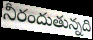
నీరందుతున్నది